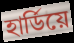
হাৰ্ডিয়ে